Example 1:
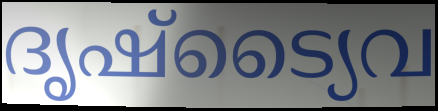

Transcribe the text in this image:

ദൃഷ്ട്യൈവ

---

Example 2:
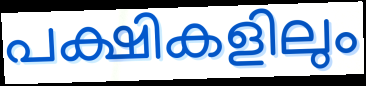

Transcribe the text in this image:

പക്ഷികളിലും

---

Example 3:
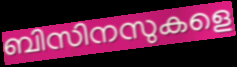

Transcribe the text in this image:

ബിസിനസുകളെ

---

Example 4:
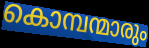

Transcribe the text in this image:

കൊമ്പന്മാരും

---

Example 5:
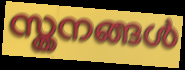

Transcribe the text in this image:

സ്തനങ്ങൾ